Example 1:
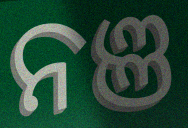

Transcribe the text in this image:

ନଞ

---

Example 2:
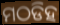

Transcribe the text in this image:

ମଠଡିହ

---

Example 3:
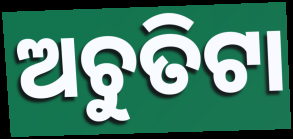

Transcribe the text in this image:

ଅଚୁତିଟା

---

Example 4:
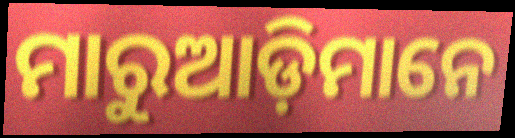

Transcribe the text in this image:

ମାରୁଆଡ଼ିମାନେ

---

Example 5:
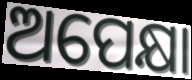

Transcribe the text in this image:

ଅପେକ୍ଷା